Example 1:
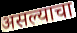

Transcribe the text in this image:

असल्‍याचा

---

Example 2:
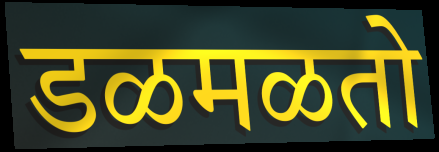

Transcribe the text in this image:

डळमळतो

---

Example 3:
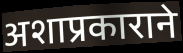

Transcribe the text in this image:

अशाप्रकाराने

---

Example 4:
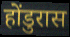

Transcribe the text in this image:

होंडुरास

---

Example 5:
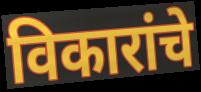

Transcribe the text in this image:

विकारांचे